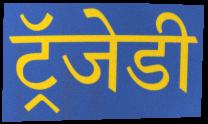
ट्रॅजेडी